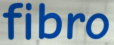
fibro